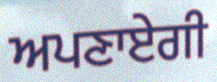
ਅਪਣਾਏਗੀ